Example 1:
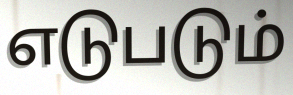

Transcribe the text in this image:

எடுபடும்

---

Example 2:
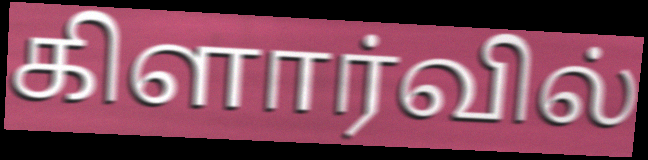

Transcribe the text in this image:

கிளார்வில்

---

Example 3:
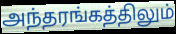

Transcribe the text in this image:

அந்தரங்கத்திலும்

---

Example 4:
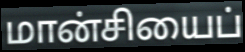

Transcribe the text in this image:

மான்சியைப்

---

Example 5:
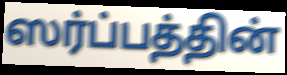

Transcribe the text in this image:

ஸர்ப்பத்தின்